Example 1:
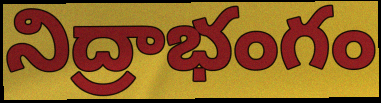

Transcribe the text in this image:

నిద్రాభంగం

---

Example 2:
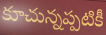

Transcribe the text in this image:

కూచున్నప్పటికీ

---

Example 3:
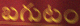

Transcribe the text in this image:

బగుటం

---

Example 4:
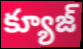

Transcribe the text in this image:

క్యూజ్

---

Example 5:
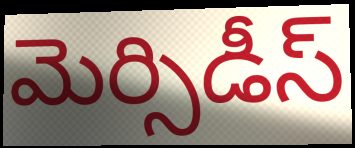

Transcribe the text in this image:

మెర్సిడీస్